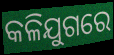
କଳିଯୁଗରେ